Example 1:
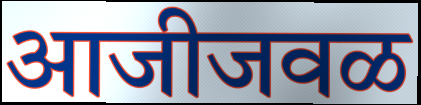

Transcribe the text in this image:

आजीजवळ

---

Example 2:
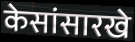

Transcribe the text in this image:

केसांसारखे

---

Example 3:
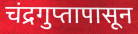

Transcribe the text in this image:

चंद्रगुप्तापासून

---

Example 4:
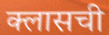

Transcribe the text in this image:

क्‍लासची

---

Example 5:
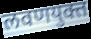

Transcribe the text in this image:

लवणयुक्त